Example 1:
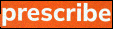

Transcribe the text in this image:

prescribe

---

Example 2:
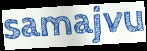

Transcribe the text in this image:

samajvu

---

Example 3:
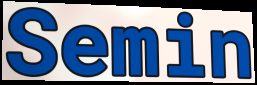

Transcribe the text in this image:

Semin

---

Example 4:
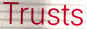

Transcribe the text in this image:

Trusts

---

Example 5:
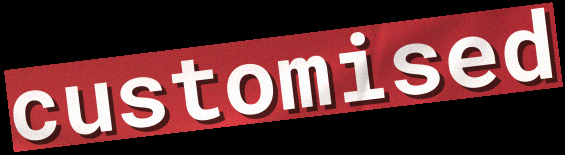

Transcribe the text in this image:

customised